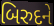
બિરુદને